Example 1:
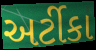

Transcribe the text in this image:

અર્ટીકા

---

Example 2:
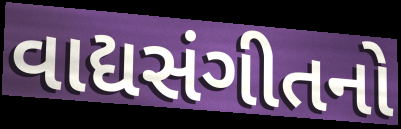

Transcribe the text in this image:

વાદ્યસંગીતનો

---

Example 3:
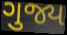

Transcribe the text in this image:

ગુજ્ય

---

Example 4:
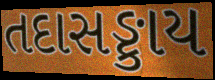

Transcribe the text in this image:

તદાસઙ્કાય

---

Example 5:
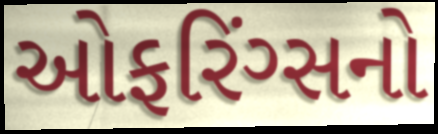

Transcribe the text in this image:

ઓફરિંગ્સનો